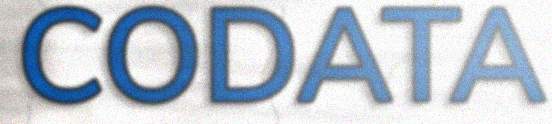
CODATA